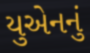
યુએનનું